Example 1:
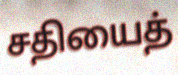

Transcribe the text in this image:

சதியைத்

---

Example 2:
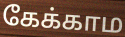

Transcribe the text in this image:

கேக்காம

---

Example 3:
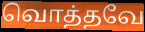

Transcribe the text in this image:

வொத்தவே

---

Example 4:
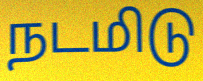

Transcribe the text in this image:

நடமிடு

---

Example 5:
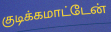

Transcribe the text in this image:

குடிக்கமாட்டேன்